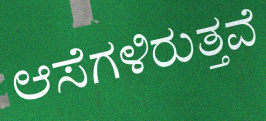
ಆಸೆಗಳಿರುತ್ತವೆ